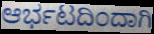
ಆರ್ಭಟದಿಂದಾಗಿ